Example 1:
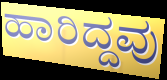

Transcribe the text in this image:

ಹಾರಿದ್ದವು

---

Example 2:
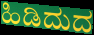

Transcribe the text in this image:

ಹಿಡಿದುದ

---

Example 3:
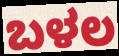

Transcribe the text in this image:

ಬಳಲ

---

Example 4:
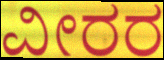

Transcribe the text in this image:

ವೀರರ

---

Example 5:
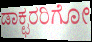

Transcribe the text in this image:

ಡಾಕ್ಟರರಿಗೋ